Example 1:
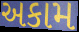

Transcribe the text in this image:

અકામ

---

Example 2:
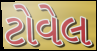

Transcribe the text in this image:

ટોવેલ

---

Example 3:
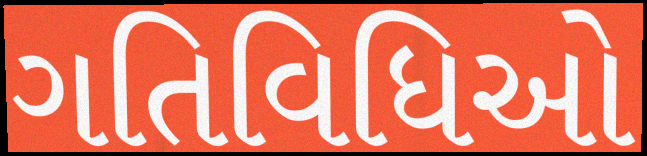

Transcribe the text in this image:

ગતિવિધિઓ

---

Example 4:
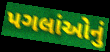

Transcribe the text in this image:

પગલાંઓનું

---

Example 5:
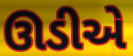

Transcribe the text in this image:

ઊડીએ